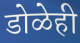
डोळेही